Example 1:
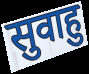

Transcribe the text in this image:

सुवाहु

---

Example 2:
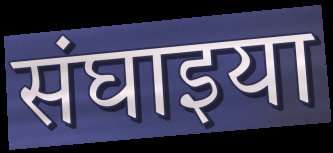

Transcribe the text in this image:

संघाइया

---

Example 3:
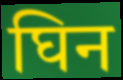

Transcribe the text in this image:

घिन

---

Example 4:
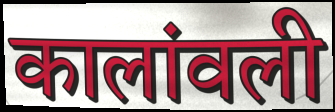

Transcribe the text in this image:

कालांवली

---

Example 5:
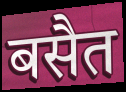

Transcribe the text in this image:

बसैत